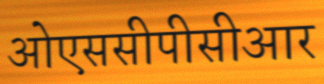
ओएससीपीसीआर